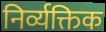
निर्व्यक्तिक